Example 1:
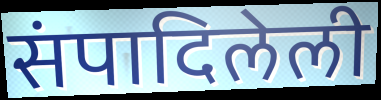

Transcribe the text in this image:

संपादिलेली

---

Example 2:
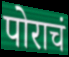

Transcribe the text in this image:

पोराचं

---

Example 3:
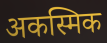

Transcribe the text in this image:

अकस्मिक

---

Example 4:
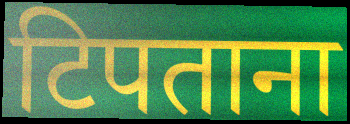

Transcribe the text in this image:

टिपताना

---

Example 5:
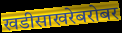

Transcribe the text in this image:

खडीसाखरेबरोबर